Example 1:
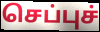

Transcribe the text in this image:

செப்புச்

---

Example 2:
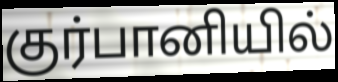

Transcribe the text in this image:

குர்பானியில்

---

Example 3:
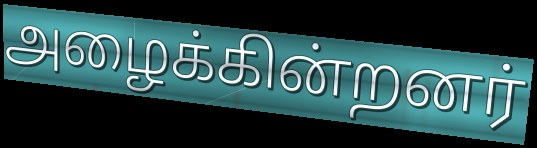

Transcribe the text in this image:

அழைக்கின்றனர்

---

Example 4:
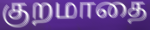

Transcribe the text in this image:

குறமாதை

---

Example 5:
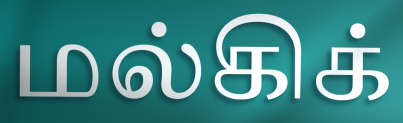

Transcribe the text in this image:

மல்கிக்